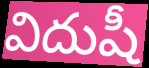
విదుషీ